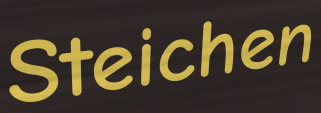
Steichen